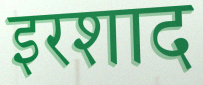
इरशाद